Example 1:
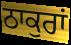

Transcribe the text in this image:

ਠਾਕੁਰਾਂ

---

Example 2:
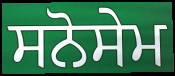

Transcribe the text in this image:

ਸਨੋਸੇਮ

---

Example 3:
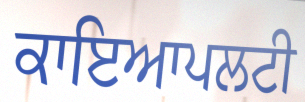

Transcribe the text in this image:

ਕਾਇਆਪਲਟੀ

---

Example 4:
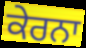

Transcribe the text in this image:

ਕੇਰਨਾ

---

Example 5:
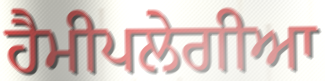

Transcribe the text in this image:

ਹੈਮੀਪਲੇਗੀਆ